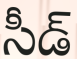
సీడ్